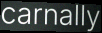
carnally